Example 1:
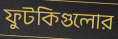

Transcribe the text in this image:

ফুটকিগুলোর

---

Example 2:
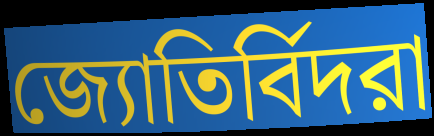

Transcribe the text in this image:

জ্যোতির্বিদরা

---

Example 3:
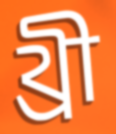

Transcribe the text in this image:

থ্রী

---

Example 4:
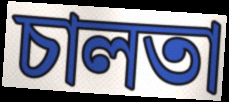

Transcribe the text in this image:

চালতা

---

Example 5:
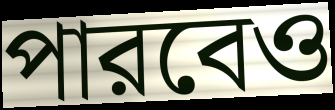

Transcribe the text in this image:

পারবেও